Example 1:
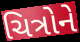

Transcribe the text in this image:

ચિત્રોને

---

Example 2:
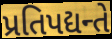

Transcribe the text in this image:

પ્રતિપદ્યન્તે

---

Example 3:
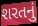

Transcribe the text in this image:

શરતનું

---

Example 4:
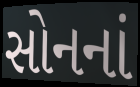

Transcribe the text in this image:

સોનનાં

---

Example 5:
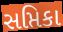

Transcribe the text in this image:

સપ્તિકા